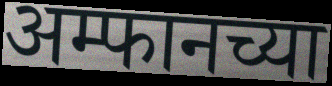
अम्फानच्या